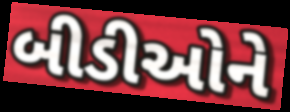
બીડીઓને